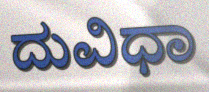
ದುವಿಧಾ